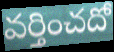
వర్తించదో